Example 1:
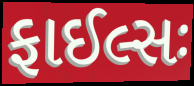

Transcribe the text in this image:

ફાઈલ્સઃ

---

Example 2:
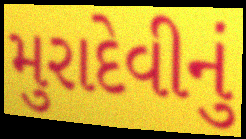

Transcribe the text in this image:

મુરાદેવીનું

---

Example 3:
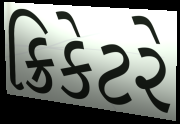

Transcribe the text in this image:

ક્રિકેટરે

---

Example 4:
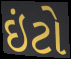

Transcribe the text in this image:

ઇંટો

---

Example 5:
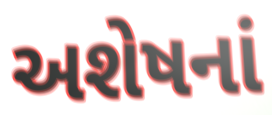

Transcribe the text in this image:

અશેષનાં